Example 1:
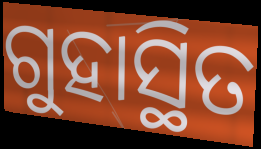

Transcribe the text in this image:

ଗୁହାସ୍ଥିତ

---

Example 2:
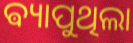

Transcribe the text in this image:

ଵ୍ୟାପୁଥିଲା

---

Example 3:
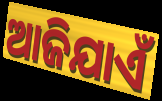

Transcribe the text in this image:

ଆଜିଯାଏଁ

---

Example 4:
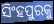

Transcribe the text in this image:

ସିଂହପୁରକୁ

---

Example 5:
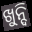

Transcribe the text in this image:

ଖୁନ୍ଦି